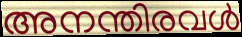
അനന്തിരവൾ